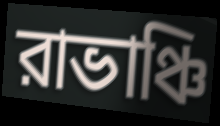
রাভাঞ্চি